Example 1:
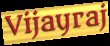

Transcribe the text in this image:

Vijayraj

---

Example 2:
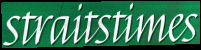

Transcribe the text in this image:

straitstimes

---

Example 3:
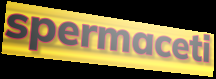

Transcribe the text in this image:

spermaceti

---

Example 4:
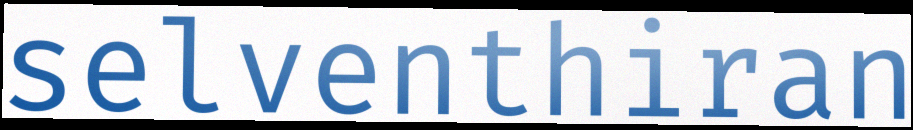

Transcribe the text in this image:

selventhiran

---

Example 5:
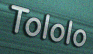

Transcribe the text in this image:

Tololo